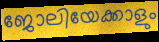
ജോലിയേക്കാളും